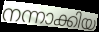
നന്നാക്കിയ